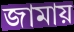
জামায়